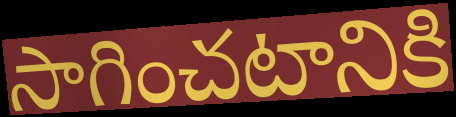
సాగించటానికి